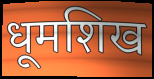
धूमशिख